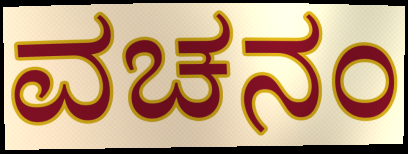
ವಚನಂ